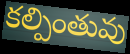
కల్పింతువు